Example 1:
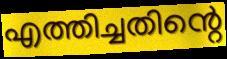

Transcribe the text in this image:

എത്തിച്ചതിന്റെ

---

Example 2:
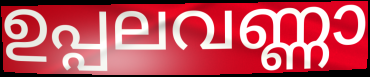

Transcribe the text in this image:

ഉപ്പലവണ്ണാ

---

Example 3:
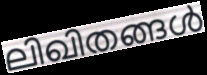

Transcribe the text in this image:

ലിഖിതങ്ങൾ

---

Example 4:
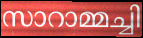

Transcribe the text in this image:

സാറാമ്മച്ചി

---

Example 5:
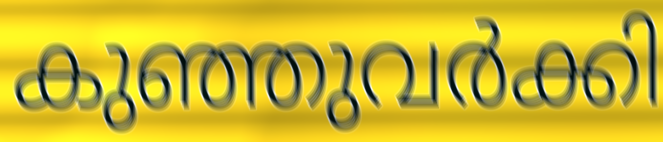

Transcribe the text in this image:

കുഞ്ഞുവർക്കി